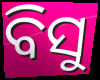
ବିସୁ